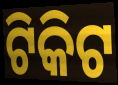
ଟିକିଟ